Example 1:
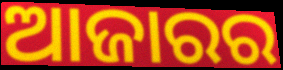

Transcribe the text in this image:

ଆଜାରର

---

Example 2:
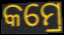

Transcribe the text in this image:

କମ୍ରେ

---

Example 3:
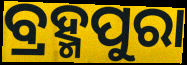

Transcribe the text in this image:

ବ୍ରହ୍ମପୁରା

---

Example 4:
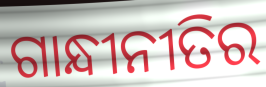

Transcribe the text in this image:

ଗାନ୍ଧୀନୀତିର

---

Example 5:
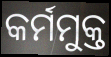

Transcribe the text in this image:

କର୍ମମୁକ୍ତ